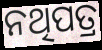
ନଥିପତ୍ର